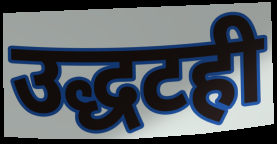
उद्धटही